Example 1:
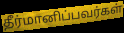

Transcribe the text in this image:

தீர்மானிப்பவர்கள்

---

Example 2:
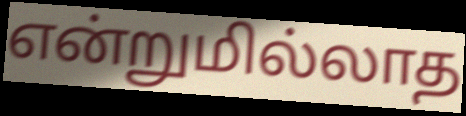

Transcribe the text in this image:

என்றுமில்லாத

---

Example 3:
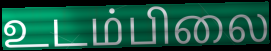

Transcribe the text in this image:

உடம்பிலை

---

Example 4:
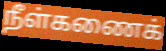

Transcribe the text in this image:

நீள்கணைக்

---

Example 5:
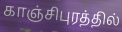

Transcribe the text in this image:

காஞ்சிபுரத்தில்